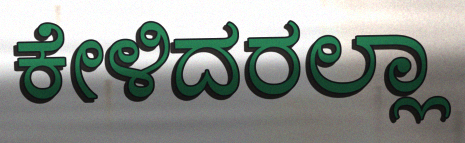
ಕೇಳಿದರಲ್ಲಾ